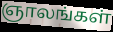
ஞாலங்கள்